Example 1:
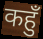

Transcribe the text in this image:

कहुँ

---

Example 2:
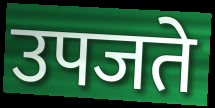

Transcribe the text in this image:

उपजते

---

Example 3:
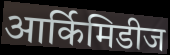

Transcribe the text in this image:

आर्किमिडीज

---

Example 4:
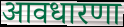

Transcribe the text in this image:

आवधारणा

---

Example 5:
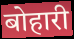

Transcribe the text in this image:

बोहारी